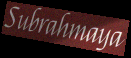
Subrahmaya